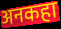
अनकहा